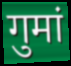
गुमां